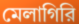
মেলাগিরি